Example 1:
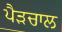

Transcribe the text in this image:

ਪੈੜਚਾਲ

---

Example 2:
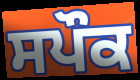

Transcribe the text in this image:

ਸਪੌਕ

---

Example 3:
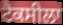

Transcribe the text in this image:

ਟੈਕਸੀਲਾ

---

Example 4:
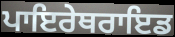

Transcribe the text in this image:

ਪਾਇਰੇਥਰਾਇਡ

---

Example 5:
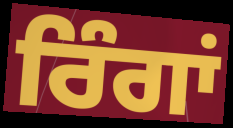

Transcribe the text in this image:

ਰਿੰਗਾਂ